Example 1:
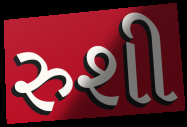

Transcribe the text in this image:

રુશી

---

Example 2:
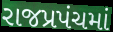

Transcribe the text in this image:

રાજપ્રપંચમાં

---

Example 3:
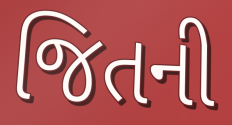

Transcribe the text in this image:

જિતની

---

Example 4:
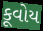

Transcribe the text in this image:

કૂવોય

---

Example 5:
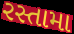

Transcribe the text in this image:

રસ્તામા